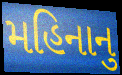
મહિનાનુ